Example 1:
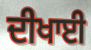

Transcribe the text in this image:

ਦੀਖਾਈ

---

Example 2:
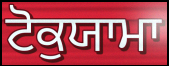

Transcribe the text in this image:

ਟੋਕੁਯਾਮਾ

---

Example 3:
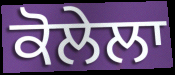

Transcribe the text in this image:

ਕੋਲੇਲਾ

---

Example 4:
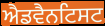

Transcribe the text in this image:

ਐਡਵੈਨਟਿਸਟ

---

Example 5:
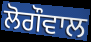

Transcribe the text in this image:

ਲੋਗੌਵਾਲ